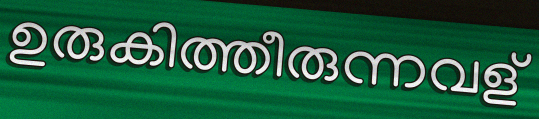
ഉരുകിത്തീരുന്നവള്